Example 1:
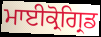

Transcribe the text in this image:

ਮਾਈਕ੍ਰੋਗ੍ਰਿਡ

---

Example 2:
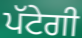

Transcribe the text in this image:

ਪੱਟੇਗੀ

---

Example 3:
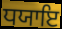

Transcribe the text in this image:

ਧਯਾਇ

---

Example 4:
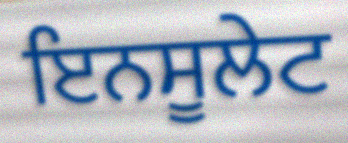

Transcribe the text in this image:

ਇਨਸੂਲੇਟ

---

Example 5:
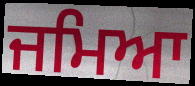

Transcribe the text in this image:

ਜਮਿਆ